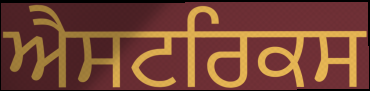
ਐਸਟਰਿਕਸ